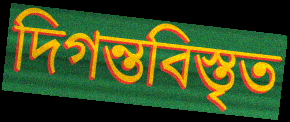
দিগন্তবিস্তৃত